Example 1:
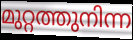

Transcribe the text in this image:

മുറ്റത്തുനിന്ന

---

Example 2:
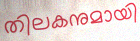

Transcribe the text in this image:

തിലകനുമായി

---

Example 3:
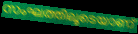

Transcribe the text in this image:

സംഘത്തിലൂടെയാണ്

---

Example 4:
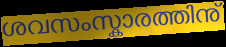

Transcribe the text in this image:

ശവസംസ്കാരത്തിനു്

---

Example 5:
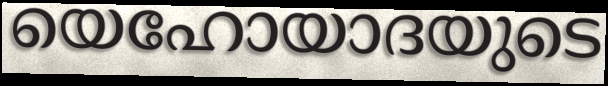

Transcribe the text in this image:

യെഹോയാദയുടെ